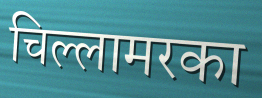
चिल्लामरका